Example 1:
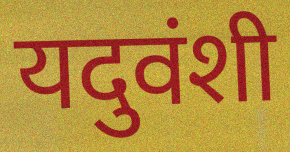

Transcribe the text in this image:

यदुवंशी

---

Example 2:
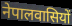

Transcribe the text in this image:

नेपालवासियों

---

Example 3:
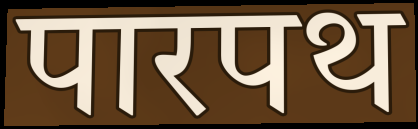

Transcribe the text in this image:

पारपथ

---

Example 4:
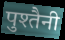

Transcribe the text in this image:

पुश्‍तैनी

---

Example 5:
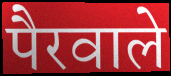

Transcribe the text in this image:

पैरवाले